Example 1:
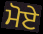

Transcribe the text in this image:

ਮੋਏ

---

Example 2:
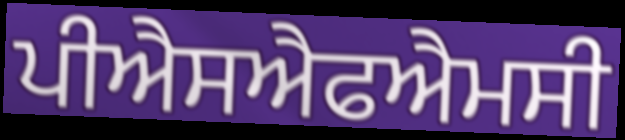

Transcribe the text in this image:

ਪੀਐਸਐਫਐਮਸੀ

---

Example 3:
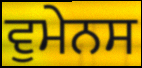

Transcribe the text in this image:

ਵੁਮੇਨਸ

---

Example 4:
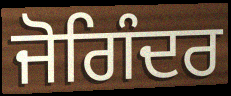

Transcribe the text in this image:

ਜੋਗਿੰਦਰ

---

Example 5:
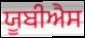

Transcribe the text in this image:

ਯੂਬੀਐਸ